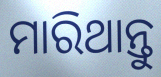
ମାରିଥାନ୍ତୁ